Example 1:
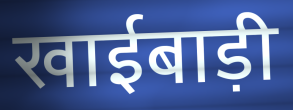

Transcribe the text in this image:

खाईबाड़ी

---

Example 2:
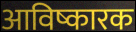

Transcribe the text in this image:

आविष्कारक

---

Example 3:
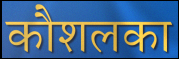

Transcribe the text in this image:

कौशलका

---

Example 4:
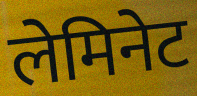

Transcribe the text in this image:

लेमिनेट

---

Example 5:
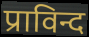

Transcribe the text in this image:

प्राविन्द